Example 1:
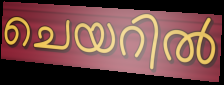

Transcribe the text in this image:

ചെയറിൽ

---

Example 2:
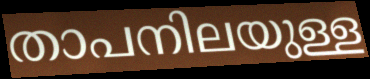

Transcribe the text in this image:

താപനിലയുള്ള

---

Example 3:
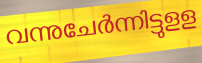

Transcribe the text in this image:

വന്നുചേർന്നിട്ടുളള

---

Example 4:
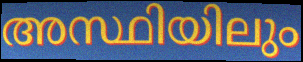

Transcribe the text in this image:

അസ്ഥിയിലും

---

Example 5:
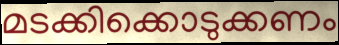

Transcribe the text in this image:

മടക്കിക്കൊടുക്കണം